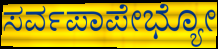
ಸರ್ವಪಾಪೇಭ್ಯೋ